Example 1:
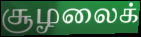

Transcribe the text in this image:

சூழலைக்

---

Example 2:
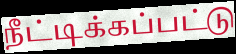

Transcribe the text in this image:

நீட்டிக்கப்பட்டு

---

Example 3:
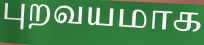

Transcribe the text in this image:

புறவயமாக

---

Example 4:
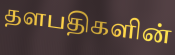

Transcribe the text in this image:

தளபதிகளின்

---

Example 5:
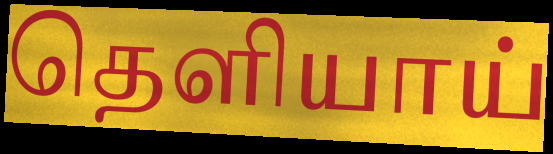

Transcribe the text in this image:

தெளியாய்